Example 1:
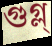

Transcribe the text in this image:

গুগ্ল্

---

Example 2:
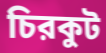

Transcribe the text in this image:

চিরকুট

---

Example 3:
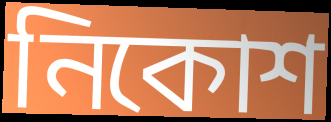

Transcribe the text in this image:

নিকোশ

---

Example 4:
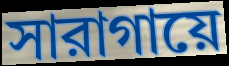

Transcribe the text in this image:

সারাগায়ে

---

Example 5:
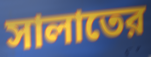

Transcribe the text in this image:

সালাতের